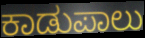
ಕಾಡುಪಾಲು